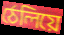
ঠেলিয়ে